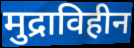
मुद्राविहीन